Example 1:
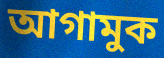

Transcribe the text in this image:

আগামুক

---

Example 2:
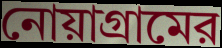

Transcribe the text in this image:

নোয়াগ্রামের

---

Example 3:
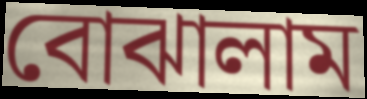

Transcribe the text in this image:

বোঝালাম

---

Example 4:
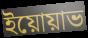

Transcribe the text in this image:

ইয়োয়াভ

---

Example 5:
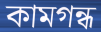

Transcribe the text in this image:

কামগন্ধ